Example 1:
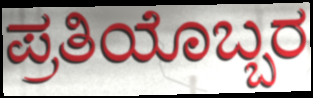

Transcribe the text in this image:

ಪ್ರತಿಯೊಬ್ಬರ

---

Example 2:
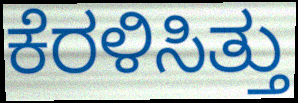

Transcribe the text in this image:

ಕೆರಳಿಸಿತ್ತು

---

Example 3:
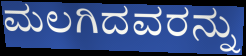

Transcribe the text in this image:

ಮಲಗಿದವರನ್ನು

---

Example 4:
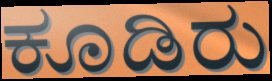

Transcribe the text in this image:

ಕೂಡಿರು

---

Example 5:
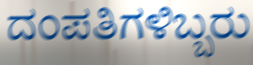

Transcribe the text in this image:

ದಂಪತಿಗಳಿಬ್ಬರು